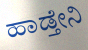
ಹಾಡ್ತೇನಿ